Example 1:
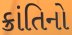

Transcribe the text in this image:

ક્રાંતિનો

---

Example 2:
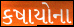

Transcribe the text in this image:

કષાયોના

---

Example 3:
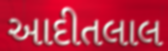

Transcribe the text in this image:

આદીતલાલ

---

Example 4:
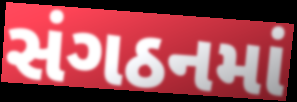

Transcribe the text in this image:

સંગઠનમાં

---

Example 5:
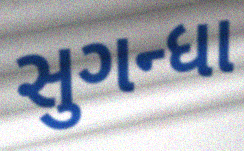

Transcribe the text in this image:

સુગન્ધા